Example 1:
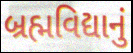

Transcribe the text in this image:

બ્રહ્મવિદ્યાનું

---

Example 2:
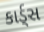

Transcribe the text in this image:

કાર્ડ્સ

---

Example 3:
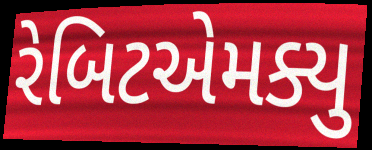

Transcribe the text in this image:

રેબિટએમક્યુ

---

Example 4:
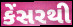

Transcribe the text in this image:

કેંસરથી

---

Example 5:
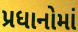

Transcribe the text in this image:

પ્રધાનોમાં